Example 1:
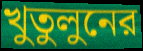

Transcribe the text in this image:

খুতুলুনের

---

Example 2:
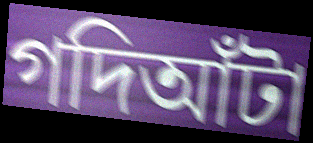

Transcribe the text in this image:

গদিআঁটা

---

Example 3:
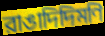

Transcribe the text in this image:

রাঙাদিদিমণি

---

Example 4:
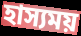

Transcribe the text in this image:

হাস্যময়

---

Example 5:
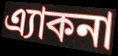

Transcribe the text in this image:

এ্যাকনা